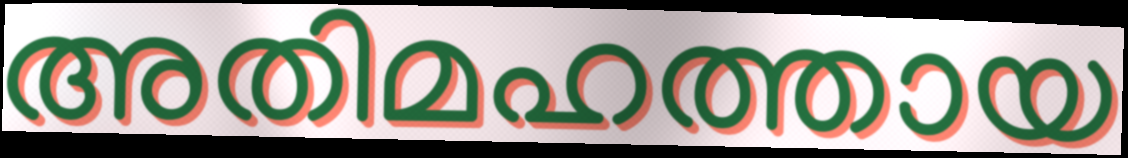
അതിമഹത്തായ